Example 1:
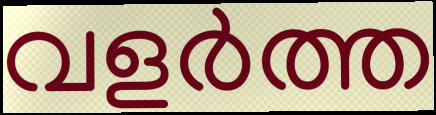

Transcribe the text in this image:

വളർത്ത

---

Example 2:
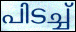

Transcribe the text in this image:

പിടച്ച്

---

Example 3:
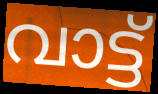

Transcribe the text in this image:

വാട്ട്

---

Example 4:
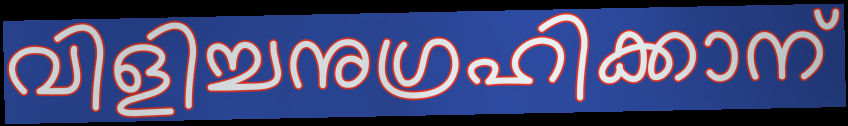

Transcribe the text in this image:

വിളിച്ചനുഗ്രഹിക്കാന്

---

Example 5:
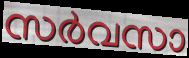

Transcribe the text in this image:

സർവസാ